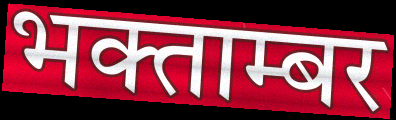
भक्ताम्बर